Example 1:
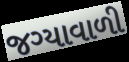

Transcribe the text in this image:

જગ્યાવાળી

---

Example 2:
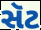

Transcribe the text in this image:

સૅટ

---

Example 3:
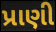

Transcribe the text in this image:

પ્રાણી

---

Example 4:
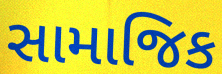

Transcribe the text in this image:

સામાજિક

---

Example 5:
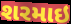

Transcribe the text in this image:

શરમાઇ